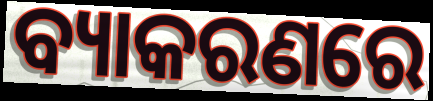
ବ୍ୟାକରଣରେ